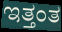
ಇತ್ತಂತ